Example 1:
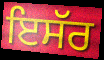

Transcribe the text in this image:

ਇਸੱਰ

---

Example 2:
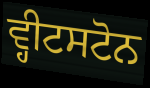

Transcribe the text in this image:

ਵ੍ਹੀਟਸਟੋਨ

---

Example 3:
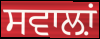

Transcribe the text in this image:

ਸਵਾਲ਼ਾਂ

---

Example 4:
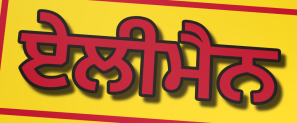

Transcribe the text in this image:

ਏਲੀਮੈਨ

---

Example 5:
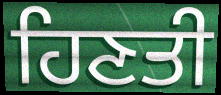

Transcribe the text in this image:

ਹਿਣਤੀ